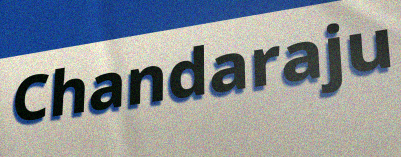
Chandaraju